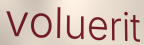
voluerit